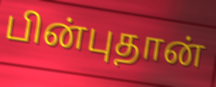
பின்புதான்